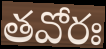
తవోరః